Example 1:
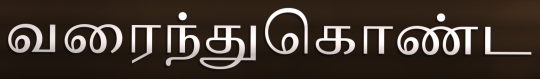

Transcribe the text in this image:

வரைந்துகொண்ட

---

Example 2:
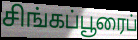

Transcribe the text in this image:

சிங்கப்பூரைப்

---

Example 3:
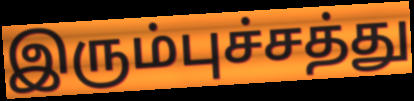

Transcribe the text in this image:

இரும்புச்சத்து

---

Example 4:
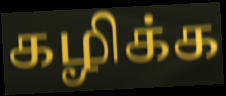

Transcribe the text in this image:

கழிக்க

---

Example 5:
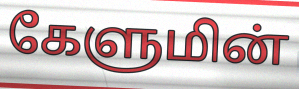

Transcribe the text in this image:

கேளுமின்